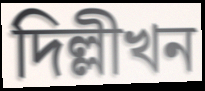
দিল্লীখন